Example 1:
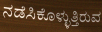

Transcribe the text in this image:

ನಡೆಸಿಕೊಳ್ಳುತ್ತಿರುವ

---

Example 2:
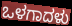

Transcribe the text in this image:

ಒಳಗಾದಳು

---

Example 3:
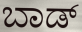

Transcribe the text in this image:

ಬಾಡ್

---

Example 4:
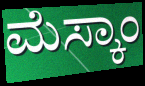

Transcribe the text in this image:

ಮೆಸ್ಕಾಂ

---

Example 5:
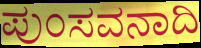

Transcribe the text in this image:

ಪುಂಸವನಾದಿ